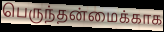
பெருந்தன்மைக்காக